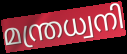
മന്ത്രധ്വനി